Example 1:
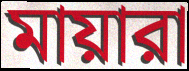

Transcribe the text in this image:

মায়ারা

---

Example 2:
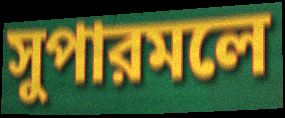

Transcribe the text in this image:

সুপারমলে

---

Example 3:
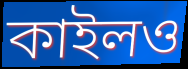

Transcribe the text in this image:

কাইলও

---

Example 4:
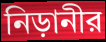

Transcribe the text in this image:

নিড়ানীর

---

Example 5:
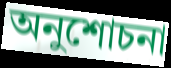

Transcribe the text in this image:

অনুশোচনা